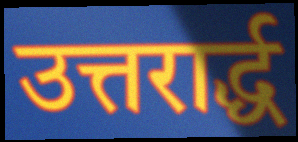
उत्तरार्द्ध